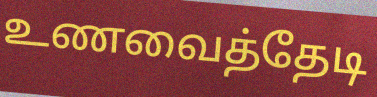
உணவைத்தேடி